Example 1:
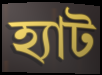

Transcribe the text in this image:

হ্যাট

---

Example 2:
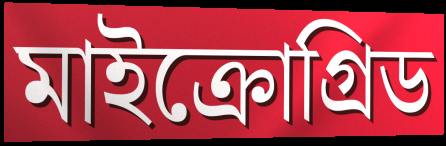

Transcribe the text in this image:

মাইক্রোগ্রিড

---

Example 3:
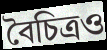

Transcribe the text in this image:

বৈচিত্রও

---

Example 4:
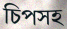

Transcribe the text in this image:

চিপসহ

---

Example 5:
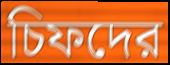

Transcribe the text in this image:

চিফদের